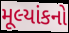
મૂલ્યાંકનો